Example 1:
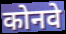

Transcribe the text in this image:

कोनवे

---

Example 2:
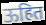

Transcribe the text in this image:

ऊहित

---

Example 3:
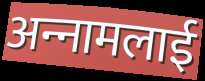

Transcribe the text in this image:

अन्‍नामलाई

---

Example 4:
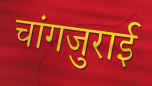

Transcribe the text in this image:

चांगजुराई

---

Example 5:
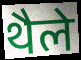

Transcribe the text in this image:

थैले